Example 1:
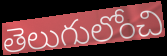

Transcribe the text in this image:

తెలుగులోంచి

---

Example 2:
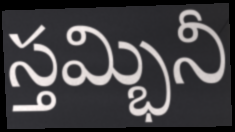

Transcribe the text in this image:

స్తమ్భినీ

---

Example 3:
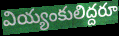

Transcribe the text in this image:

వియ్యంకులిద్దరూ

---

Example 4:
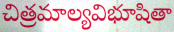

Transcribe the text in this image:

చిత్రమాల్యవిభూషితా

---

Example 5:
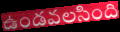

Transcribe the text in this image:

ఉండవలసింది